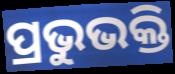
ପ୍ରଭୁଭକ୍ତି